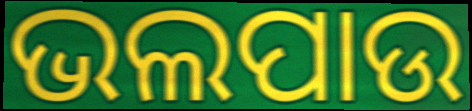
ଭଲପାଉ